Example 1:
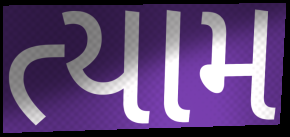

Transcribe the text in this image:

ત્યામ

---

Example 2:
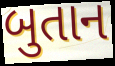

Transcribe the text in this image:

બુતાન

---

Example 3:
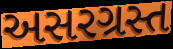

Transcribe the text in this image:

અસરગ્રસ્ત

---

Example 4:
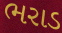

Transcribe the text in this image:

ભરાડ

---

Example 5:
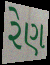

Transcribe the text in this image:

રેણ